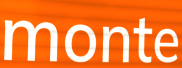
monte